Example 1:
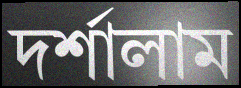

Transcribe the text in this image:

দর্শালাম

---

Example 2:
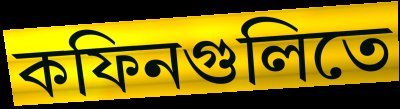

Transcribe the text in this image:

কফিনগুলিতে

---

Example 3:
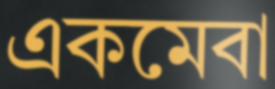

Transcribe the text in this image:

একমেবা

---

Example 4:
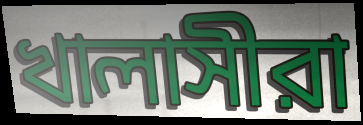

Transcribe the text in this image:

খালাসীরা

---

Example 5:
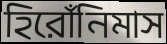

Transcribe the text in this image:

হিরোঁনিমাস